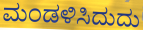
ಮಂಡಳಿಸಿದುದು